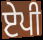
ਏਪੀ